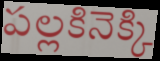
పల్లకినెక్కి